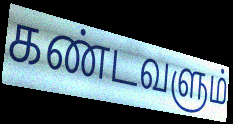
கண்டவளும்